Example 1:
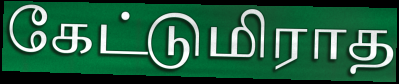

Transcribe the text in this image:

கேட்டுமிராத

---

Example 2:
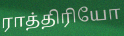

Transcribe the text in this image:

ராத்திரியோ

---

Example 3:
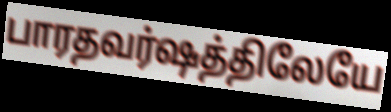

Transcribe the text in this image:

பாரதவர்ஷத்திலேயே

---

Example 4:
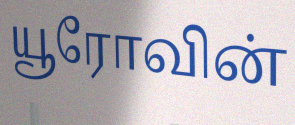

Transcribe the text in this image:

யூரோவின்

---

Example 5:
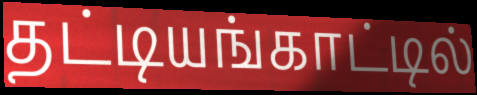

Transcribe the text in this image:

தட்டியங்காட்டில்